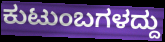
ಕುಟುಂಬಗಳದ್ದು